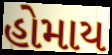
હોમાય